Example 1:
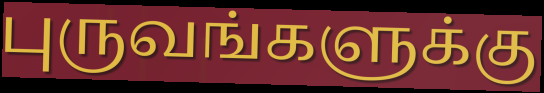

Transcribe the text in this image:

புருவங்களுக்கு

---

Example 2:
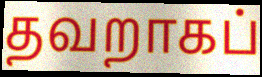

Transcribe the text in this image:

தவறாகப்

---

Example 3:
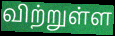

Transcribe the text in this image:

விற்றுள்ள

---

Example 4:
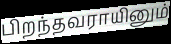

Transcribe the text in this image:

பிறந்தவராயினும்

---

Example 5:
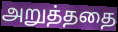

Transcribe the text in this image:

அறுத்ததை